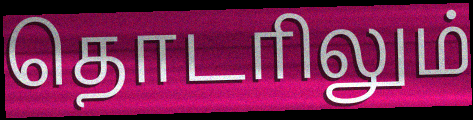
தொடரிலும்